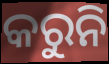
କରୁନି